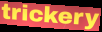
trickery